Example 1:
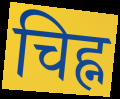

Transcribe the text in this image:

चिह्न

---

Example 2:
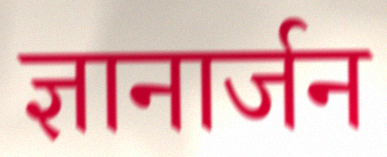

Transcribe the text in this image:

ज्ञानार्जन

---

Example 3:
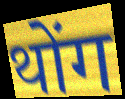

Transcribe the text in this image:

थोंग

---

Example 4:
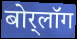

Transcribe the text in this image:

बोर्‌लॉग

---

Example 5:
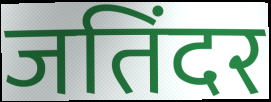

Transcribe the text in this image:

जतिंदर